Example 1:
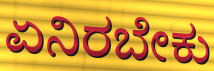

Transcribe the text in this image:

ಏನಿರಬೇಕು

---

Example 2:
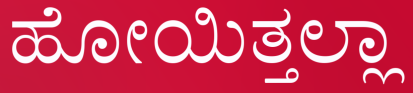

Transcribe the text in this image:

ಹೋಯಿತ್ತಲ್ಲಾ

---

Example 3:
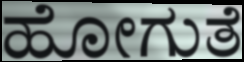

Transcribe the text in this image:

ಹೋಗುತೆ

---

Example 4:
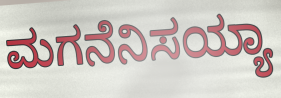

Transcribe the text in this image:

ಮಗನೆನಿಸಯ್ಯಾ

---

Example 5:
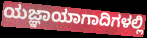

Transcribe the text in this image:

ಯಜ್ಞಾಯಾಗಾದಿಗಳಲ್ಲಿ